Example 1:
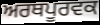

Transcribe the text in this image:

ਅਰਥਪੂਰਵਕ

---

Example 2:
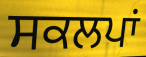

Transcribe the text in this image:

ਸਕਲਪਾਂ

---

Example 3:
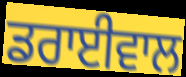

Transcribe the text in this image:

ਡਰਾਈਵਾਲ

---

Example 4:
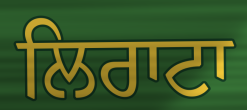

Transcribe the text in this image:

ਲਿਰਾਟਾ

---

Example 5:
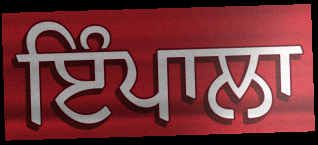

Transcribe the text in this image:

ਇੰਪਾਲਾ